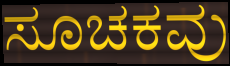
ಸೂಚಕವು